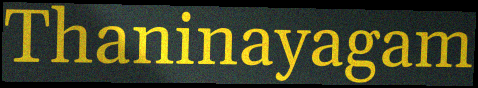
Thaninayagam